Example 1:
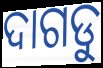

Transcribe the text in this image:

ଦାଗଡୁ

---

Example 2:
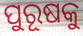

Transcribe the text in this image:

ପୁରୂଷକୁ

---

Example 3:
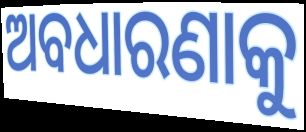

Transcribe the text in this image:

ଅବଧାରଣାକୁ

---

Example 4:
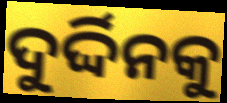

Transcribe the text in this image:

ଦୁର୍ଦ୍ଦିନକୁ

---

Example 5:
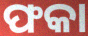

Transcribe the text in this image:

ଫକା